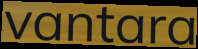
vantara